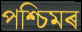
পশ্চিমৰ